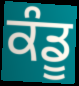
ਕੰਡੂ